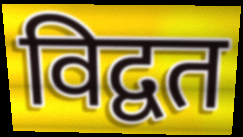
विद्वत